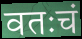
वतःचं